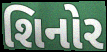
શિનોર